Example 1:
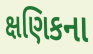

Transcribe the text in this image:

ક્ષણિકના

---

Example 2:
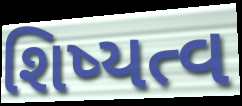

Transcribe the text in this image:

શિષ્યત્વ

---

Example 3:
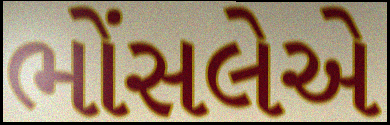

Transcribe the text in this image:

ભોંસલેએ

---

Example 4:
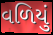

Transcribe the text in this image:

વળિયું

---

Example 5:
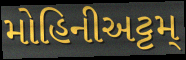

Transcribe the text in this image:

મોહિનીઅટ્ટમ્